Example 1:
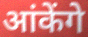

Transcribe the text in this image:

आंकेंगे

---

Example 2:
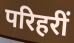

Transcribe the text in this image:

परिहरीं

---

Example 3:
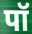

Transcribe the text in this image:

पॉ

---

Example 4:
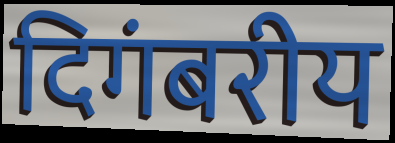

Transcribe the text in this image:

दिगंबरीय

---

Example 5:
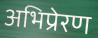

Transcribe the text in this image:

अभिप्रेरण